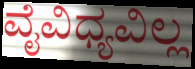
ವೈವಿಧ್ಯವಿಲ್ಲ